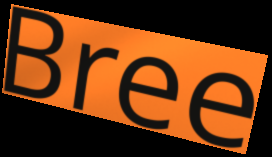
Bree